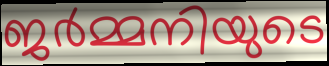
ജർമ്മനിയുടെ